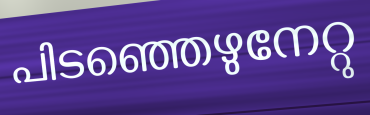
പിടഞ്ഞെഴുനേറ്റു